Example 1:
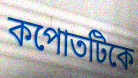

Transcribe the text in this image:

কপোতটিকে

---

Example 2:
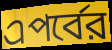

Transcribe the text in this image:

এপর্বের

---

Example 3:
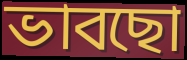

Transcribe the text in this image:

ভাবছো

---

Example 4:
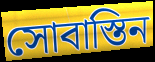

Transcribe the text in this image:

সোবাস্তিন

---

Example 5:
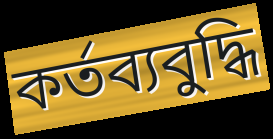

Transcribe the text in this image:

কর্তব্যবুদ্ধি